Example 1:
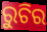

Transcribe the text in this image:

ରୁଚିର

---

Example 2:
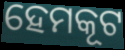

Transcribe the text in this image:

ହେମକୂଟ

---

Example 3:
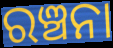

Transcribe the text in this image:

ରଞ୍ଚନା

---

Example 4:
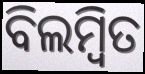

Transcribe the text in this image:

ବିଲମ୍ୱିତ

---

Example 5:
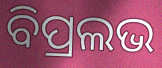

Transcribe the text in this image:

ବିପ୍ରଲଭ